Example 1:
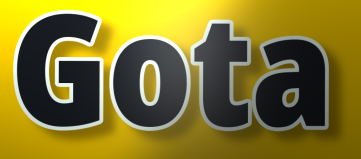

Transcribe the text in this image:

Gota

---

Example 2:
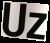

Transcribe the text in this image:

Uz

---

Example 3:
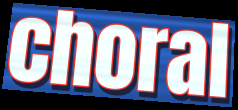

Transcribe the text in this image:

choral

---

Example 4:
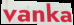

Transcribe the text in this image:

vanka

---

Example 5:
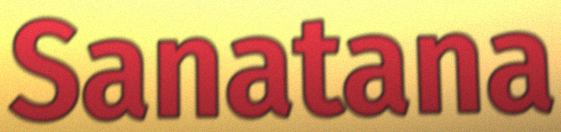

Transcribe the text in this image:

Sanatana